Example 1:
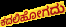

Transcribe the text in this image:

ಕದಲಿಹೋಗದು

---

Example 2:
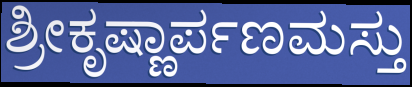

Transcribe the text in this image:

ಶ್ರೀಕೃಷ್ಣಾರ್ಪಣಮಸ್ತು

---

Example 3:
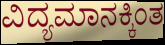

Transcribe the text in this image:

ವಿದ್ಯಮಾನಕ್ಕಿಂತ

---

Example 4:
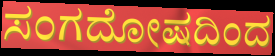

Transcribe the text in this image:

ಸಂಗದೋಷದಿಂದ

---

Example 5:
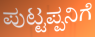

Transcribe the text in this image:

ಪುಟ್ಟಪ್ಪನಿಗೆ